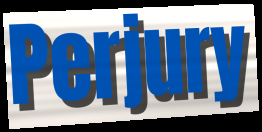
Perjury